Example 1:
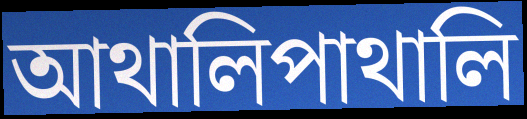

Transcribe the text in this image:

আথালিপাথালি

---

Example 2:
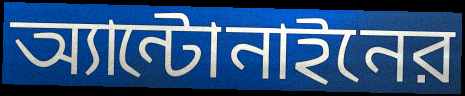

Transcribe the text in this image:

অ্যান্টোনাইনের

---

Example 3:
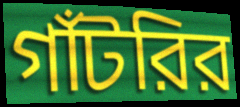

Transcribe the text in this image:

গাঁটরির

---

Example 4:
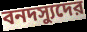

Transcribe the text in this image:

বনদস্যুদের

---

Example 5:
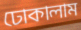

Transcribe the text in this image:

ঢোকালাম